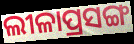
ଲୀଳାପ୍ରସଙ୍ଗ